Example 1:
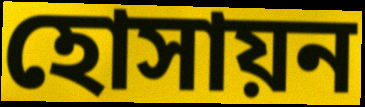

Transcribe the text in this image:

হোসায়ন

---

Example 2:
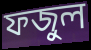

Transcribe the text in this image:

ফজুল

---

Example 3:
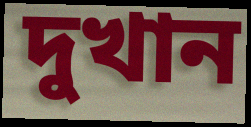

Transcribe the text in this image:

দুখান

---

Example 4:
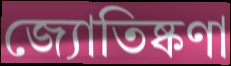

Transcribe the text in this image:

জ্যোতিষ্কণা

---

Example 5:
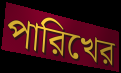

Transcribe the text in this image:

পারিখের